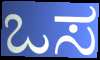
ಒಸ